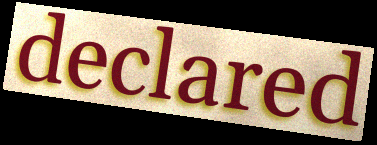
declared